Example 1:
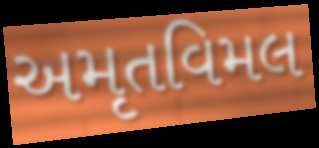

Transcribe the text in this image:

અમૃતવિમલ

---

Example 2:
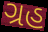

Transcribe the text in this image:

ગ્રહ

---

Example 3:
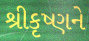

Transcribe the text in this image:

શ્રીકૃષ્ણને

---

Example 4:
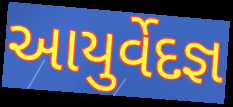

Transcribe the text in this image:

આયુર્વેદજ્ઞ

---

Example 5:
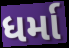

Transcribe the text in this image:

ધર્મા